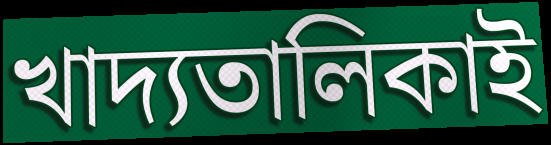
খাদ্যতালিকাই